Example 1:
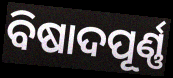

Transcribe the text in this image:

ବିଷାଦପୂର୍ଣ୍ଣ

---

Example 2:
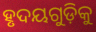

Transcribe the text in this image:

ହୃଦୟଗୁଡ଼ିକୁ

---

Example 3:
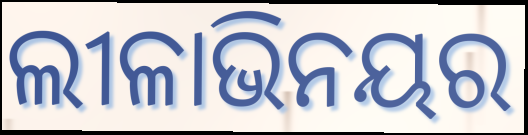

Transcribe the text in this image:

ଲୀଳାଭିନୟର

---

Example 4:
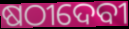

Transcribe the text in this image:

ଷଠୀଦେବୀ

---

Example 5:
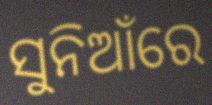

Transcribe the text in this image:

ସୁନିଆଁରେ